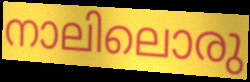
നാലിലൊരു